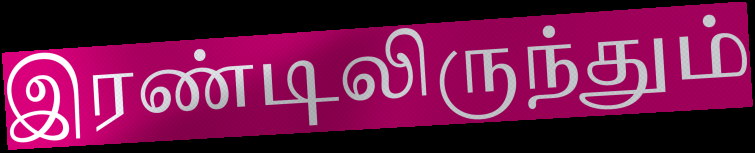
இரண்டிலிருந்தும்